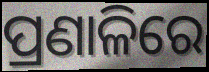
ପ୍ରଣାଳିରେ